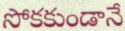
సోకకుండానే